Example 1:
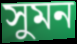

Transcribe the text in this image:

সুমন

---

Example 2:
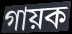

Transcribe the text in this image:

গায়ক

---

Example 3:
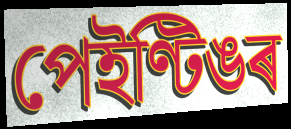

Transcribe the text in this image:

পেইণ্টিঙৰ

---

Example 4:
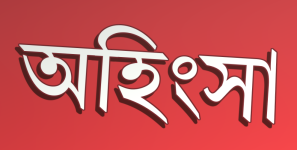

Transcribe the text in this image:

অহিংসা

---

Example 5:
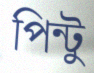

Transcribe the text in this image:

পিন্টু